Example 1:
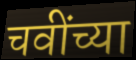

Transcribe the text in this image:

चवींच्या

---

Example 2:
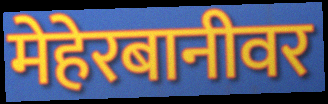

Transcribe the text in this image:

मेहेरबानीवर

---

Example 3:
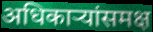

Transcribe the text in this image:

अधिकाऱ्यांसमक्ष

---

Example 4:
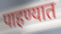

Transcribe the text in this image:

पाहण्यात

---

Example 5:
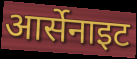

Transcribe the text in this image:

आर्सेनाइट